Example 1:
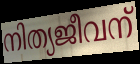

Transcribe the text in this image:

നിത്യജീവന്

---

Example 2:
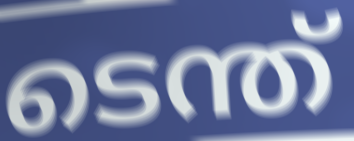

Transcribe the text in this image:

ടെന്ത്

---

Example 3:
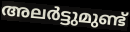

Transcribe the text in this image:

അലർട്ടുമുണ്ട്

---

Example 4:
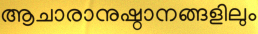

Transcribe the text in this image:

ആചാരാനുഷ്ഠാനങ്ങളിലും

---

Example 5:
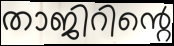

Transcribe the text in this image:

താജിറിന്റെ